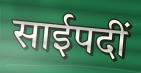
साईपदीं